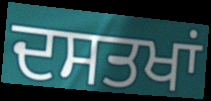
ਦਸਤਖਾਂ